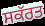
ਸਕੱਰਤ